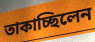
তাকাচ্ছিলেন